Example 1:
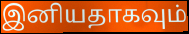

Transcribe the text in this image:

இனியதாகவும்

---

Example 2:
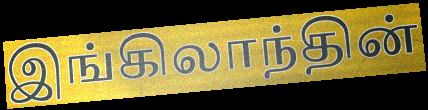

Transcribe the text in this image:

இங்கிலாந்தின்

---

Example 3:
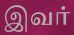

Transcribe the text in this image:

இவர்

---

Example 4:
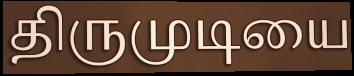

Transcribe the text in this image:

திருமுடியை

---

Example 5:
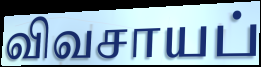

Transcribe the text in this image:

விவசாயப்